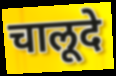
चालूदे